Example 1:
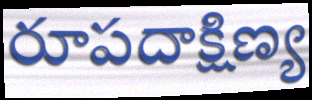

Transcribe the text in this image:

రూపదాక్షిణ్య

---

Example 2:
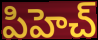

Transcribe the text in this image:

పిహెచ్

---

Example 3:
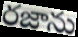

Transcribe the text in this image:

రజాను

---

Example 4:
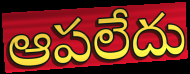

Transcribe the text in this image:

ఆపలేదు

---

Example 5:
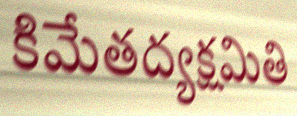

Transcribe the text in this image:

కిమేతద్యక్షమితి